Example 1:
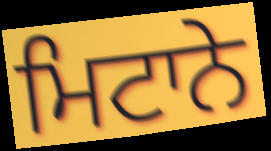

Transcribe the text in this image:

ਮਿਟਾਨੇ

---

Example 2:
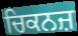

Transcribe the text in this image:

ਚਿਕਨਜ਼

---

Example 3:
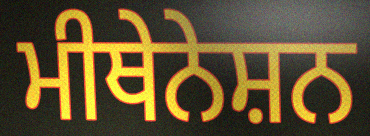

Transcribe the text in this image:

ਮੀਥੇਨੇਸ਼ਨ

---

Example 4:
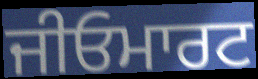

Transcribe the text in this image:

ਜੀਓਮਾਰਟ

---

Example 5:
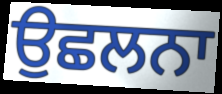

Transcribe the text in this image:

ਉਛਲਨਾ